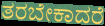
ತರಬೇಕಾದರೆ